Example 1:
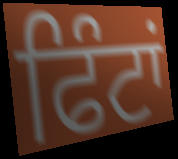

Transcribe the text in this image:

ਫਿੰਟਾਂ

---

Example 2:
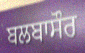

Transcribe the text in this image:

ਬਲਬਾਸੌਰ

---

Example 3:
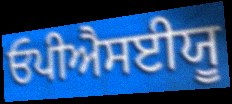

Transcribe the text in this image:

ਓਪੀਐਸਈਯੂ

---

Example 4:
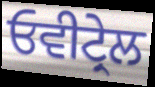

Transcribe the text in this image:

ਓਵੀਟ੍ਰੇਲ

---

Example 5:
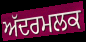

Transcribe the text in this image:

ਅੱਦਰਮਲਕ